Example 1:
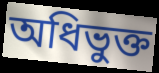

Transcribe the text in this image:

অধিভুক্ত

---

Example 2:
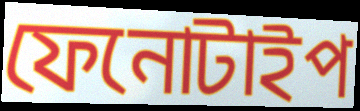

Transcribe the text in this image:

ফেনোটাইপ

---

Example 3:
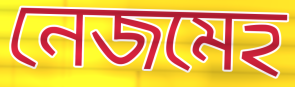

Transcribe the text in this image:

নেজমেহ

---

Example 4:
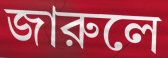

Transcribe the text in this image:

জারুলে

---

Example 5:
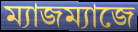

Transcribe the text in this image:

ম্যাজম্যাজে